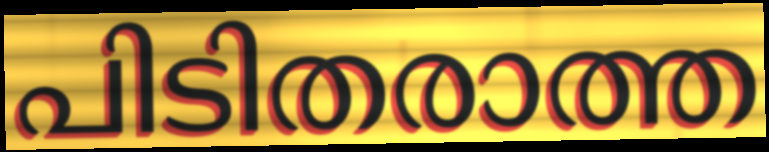
പിടിതരാത്ത